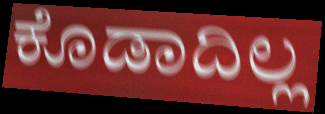
ಕೊಡಾದಿಲ್ಲ